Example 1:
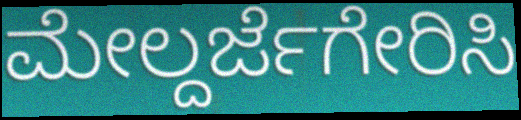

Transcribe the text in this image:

ಮೇಲ್ದರ್ಜೆಗೇರಿಸಿ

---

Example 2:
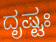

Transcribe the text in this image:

ದೃಷ್ಟಃ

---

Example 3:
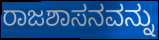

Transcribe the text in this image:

ರಾಜಶಾಸನವನ್ನು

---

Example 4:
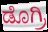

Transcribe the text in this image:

ಡೊಗ್ರಿ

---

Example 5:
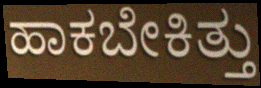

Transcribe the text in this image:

ಹಾಕಬೇಕಿತ್ತು